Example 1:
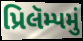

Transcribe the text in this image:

પ્રિલૅમ્પમું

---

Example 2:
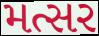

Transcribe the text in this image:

મત્સર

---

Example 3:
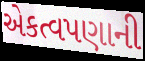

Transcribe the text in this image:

એકત્વપણાની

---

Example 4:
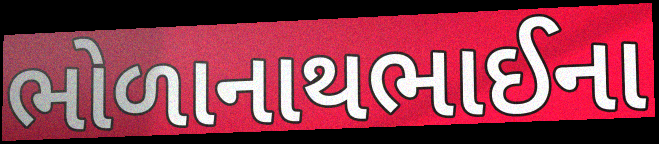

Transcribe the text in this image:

ભોળાનાથભાઈના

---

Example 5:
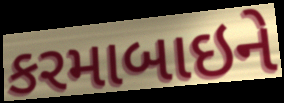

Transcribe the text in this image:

કરમાબાઇને